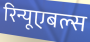
रिन्यूएबल्स